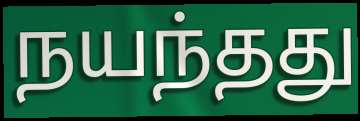
நயந்தது